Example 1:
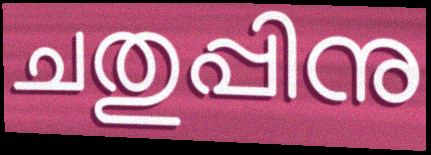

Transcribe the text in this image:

ചതുപ്പിനു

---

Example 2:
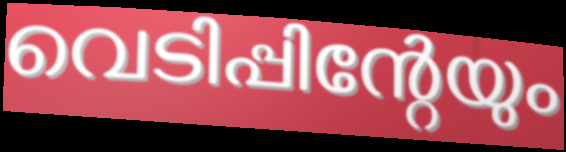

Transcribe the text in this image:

വെടിപ്പിന്റേയും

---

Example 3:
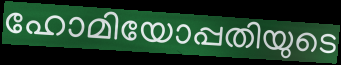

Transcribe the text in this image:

ഹോമിയോപ്പതിയുടെ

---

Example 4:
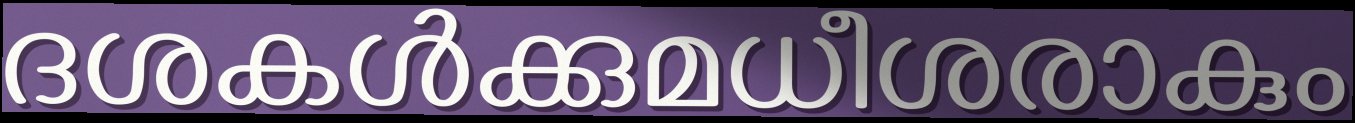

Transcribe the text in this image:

ദശകൾക്കുമധീശരാകും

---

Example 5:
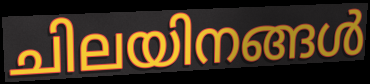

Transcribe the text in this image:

ചിലയിനങ്ങൾ